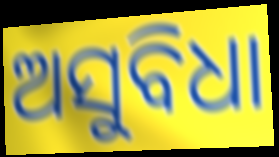
ଅସୁବିଧା